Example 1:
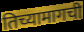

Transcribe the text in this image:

तिच्यामागची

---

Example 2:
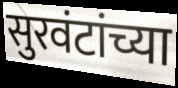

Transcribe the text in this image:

सुरवंटांच्या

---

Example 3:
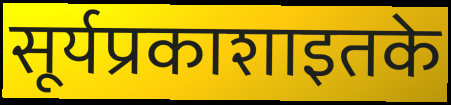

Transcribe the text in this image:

सूर्यप्रकाशाइतके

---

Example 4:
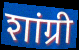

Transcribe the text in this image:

शांग्री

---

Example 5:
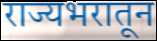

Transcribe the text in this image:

राज्यभरातून